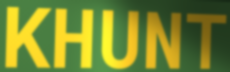
KHUNT